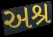
અશ્ર